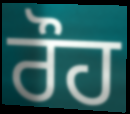
ਰੌਹ